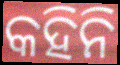
କହିନି